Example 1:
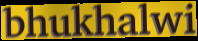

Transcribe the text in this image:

bhukhalwi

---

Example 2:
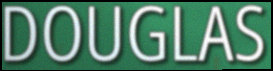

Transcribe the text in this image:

DOUGLAS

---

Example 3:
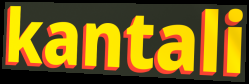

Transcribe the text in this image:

kantali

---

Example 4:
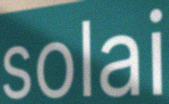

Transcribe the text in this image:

solai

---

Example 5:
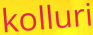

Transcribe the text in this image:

kolluri